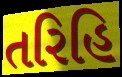
તરિહિ